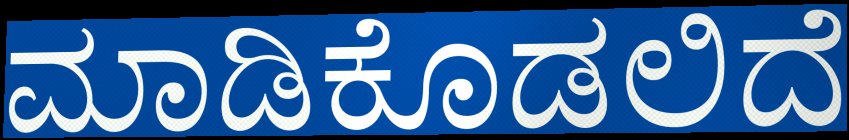
ಮಾಡಿಕೊಡಲಿದೆ